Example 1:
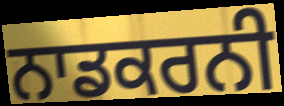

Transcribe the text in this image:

ਨਾਡਕਰਨੀ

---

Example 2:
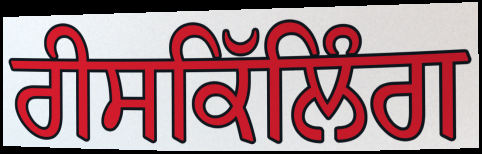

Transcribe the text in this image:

ਰੀਸਕਿੱਲਿੰਗ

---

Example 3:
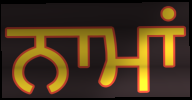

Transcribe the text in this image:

ਨਾਮਾਂ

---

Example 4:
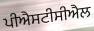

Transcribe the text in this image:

ਪੀਐਸਟੀਸੀਐਲ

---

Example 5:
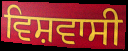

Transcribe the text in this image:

ਵਿਸ਼ਵਾਸੀ